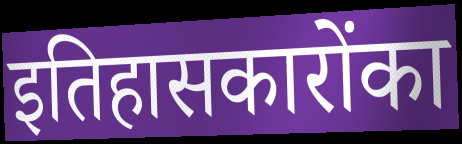
इतिहासकारोंका